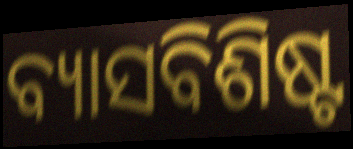
ବ୍ୟାସବିଶିଷ୍ଟ